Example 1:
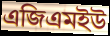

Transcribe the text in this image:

এজিএমইউ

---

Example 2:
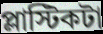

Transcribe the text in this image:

প্লাস্টিকটা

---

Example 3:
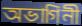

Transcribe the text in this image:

অভাগিনী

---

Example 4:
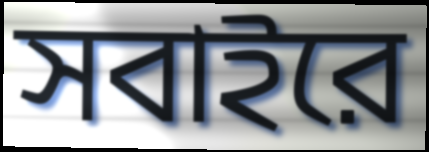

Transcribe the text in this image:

সবাইরে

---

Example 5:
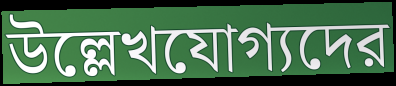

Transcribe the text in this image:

উল্লেখযোগ্যদের